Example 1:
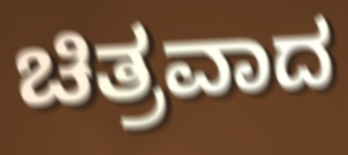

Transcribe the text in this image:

ಚಿತ್ರವಾದ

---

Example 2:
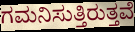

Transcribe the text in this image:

ಗಮನಿಸುತ್ತಿರುತ್ತವೆ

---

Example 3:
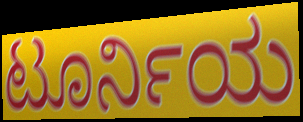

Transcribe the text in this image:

ಟೂರ್ನಿಯ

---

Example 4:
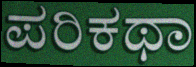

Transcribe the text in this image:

ಪರಿಕಥಾ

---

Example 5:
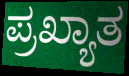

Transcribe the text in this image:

ಪ್ರಖ್ಯಾತ